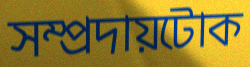
সম্প্ৰদায়টোক